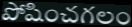
పోషించగలం